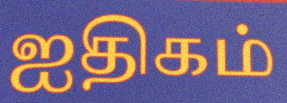
ஐதிகம்